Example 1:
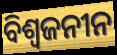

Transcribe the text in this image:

ବିଶ୍ୱଜନୀନ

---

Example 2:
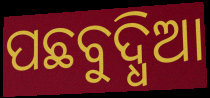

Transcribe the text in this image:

ପଛବୁଦ୍ଧିଆ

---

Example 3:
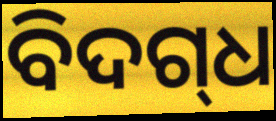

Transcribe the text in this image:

ବିଦଗ୍‌ଧ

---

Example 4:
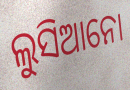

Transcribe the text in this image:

ଲୁସିଆନୋ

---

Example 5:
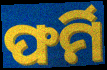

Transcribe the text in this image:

ଫର୍ମି